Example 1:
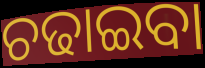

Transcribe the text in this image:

ଚଢାଇବା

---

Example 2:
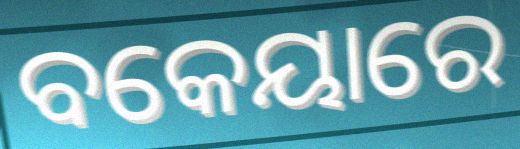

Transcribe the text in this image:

ବକେୟାରେ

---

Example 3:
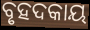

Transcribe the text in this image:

ବୃହଦକାୟ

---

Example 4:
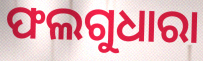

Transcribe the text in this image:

ଫଲଗୁଧାରା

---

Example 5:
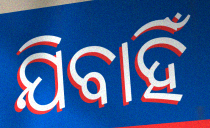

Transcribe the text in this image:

ଯିବାହିଁ